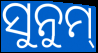
ସୁନୁମ୍